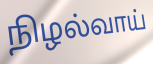
நிழல்வாய்